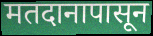
मतदानापासून